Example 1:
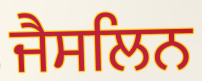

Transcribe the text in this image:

ਜੈਸਲਿਨ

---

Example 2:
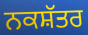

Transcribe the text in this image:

ਨਕਸ਼ੱਤਰ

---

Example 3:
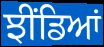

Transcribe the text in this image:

ਝੀਂਡਿਆਂ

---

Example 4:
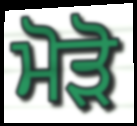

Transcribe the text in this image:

ਮੋੜੋ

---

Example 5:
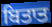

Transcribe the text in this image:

ਬਿਤਾਤ